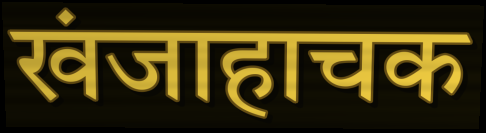
खंजाहाचक